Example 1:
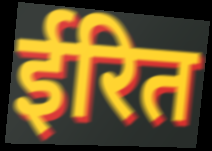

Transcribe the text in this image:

ईरित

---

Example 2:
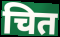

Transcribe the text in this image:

चित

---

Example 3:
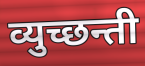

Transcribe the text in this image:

व्युच्छन्ती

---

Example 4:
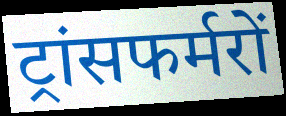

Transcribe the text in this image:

ट्रांसफर्मरों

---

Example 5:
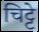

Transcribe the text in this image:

चिट्टे